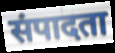
संपादता